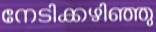
നേടിക്കഴിഞ്ഞു